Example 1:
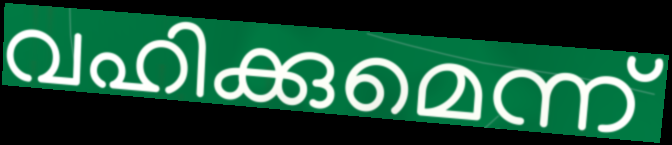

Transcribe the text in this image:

വഹിക്കുമെന്ന്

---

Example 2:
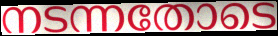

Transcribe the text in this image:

നടന്നതോടെ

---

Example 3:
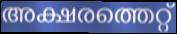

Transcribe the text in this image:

അക്ഷരത്തെറ്റ്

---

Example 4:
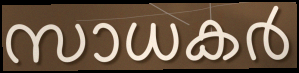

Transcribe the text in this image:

സാധകർ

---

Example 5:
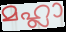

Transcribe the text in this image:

മഹ്ലാ